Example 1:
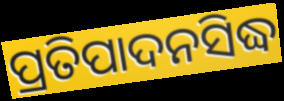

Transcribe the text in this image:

ପ୍ରତିପାଦନସିଦ୍ଧ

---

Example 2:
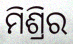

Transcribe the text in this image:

ମିଶ୍ରିର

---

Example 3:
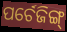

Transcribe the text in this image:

ପର୍ଚେଜିଙ୍ଗ୍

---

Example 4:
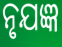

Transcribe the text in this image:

ନୃଯଜ୍ଞ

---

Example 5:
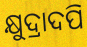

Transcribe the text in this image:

କ୍ଷୁଦ୍ରାଦପି